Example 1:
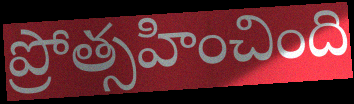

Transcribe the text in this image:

ప్రోత్సహించింది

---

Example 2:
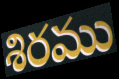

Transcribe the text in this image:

శిరము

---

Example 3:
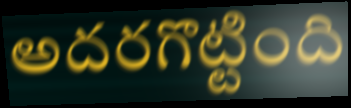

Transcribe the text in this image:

అదరగొట్టింది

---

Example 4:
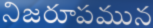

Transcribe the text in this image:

నిజరూపమున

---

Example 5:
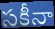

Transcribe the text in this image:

సకీనా